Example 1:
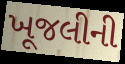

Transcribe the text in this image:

ખૂજલીની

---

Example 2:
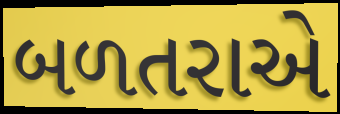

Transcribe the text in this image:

બળતરાએ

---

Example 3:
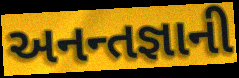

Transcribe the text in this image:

અનન્તજ્ઞાની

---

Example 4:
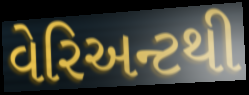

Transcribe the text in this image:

વેરિઅન્ટથી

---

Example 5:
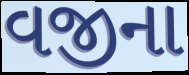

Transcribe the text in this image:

વજીના